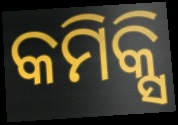
କମିକ୍ସି